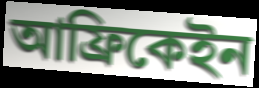
আফ্রিকেইন